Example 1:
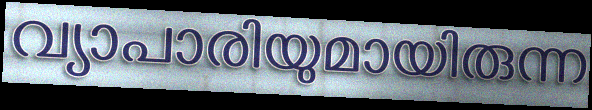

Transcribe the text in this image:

വ്യാപാരിയുമായിരുന്ന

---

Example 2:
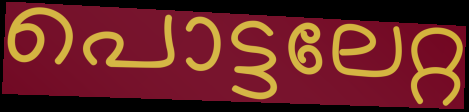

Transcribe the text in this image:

പൊട്ടലേറ്റ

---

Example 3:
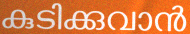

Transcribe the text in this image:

കുടിക്കുവാൻ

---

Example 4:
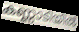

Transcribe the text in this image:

കണ്ണാടിയിൽ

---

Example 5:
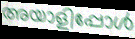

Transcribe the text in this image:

അയാളിപ്പോൾ